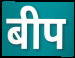
बीप